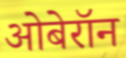
ओबेरॉन